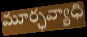
మూర్ఛవ్యాధి